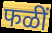
फळीं